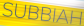
SUBBIAH